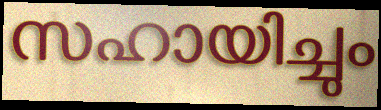
സഹായിച്ചും